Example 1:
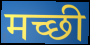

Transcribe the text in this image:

मच्छी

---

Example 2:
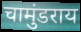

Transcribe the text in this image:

चामुंडराय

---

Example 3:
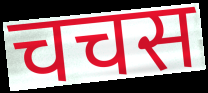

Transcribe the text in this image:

चचस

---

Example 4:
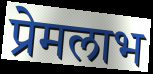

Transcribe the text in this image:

प्रेमलाभ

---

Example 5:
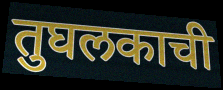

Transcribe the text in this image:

तुघलकाची